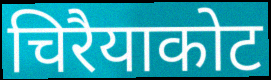
चिरैयाकोट